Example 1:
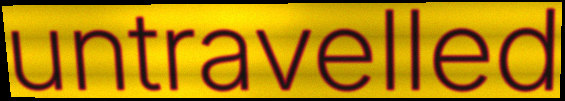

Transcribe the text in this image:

untravelled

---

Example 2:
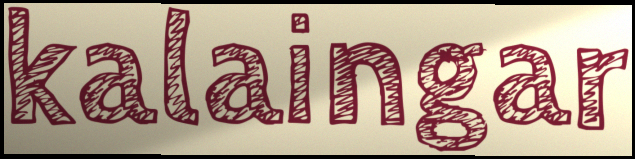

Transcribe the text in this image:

kalaingar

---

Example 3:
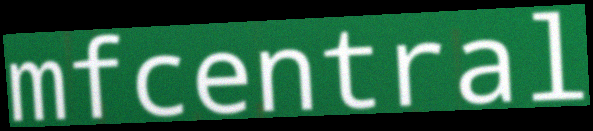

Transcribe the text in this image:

mfcentral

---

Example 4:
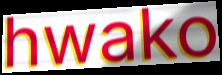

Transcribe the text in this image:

hwako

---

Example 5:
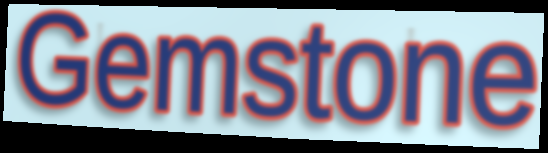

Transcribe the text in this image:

Gemstone